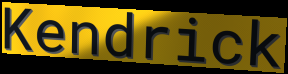
Kendrick